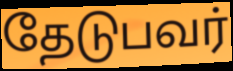
தேடுபவர்